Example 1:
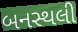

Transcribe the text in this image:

બનસ્થલી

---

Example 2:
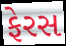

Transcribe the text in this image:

ફેરસ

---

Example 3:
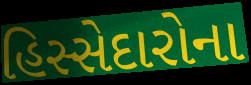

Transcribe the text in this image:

હિસ્સેદારોના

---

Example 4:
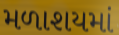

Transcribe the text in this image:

મળાશયમાં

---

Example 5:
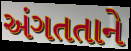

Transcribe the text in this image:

અંગતતાને